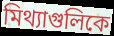
মিথ্যাগুলিকে